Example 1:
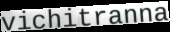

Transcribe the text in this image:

vichitranna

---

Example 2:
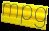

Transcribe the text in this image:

mpg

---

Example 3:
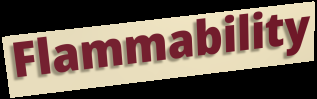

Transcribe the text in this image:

Flammability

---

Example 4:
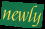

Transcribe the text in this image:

newly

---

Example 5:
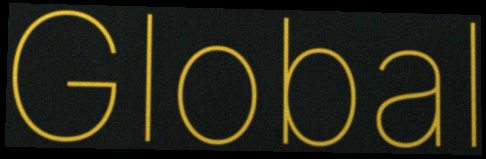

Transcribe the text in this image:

Global